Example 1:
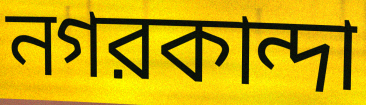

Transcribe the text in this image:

নগরকান্দা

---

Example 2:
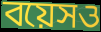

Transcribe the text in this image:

বয়েসও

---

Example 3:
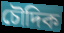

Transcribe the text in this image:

চৌদিক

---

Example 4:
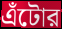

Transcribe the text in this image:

এঁটোর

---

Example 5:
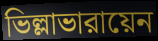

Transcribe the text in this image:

ভিল্লাভারায়েন